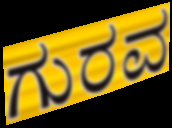
ಗುರವ